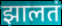
झालतं